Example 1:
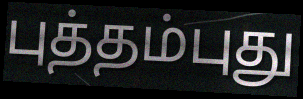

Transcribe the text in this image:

புத்தம்புது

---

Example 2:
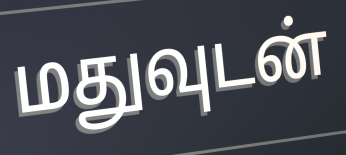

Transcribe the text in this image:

மதுவுடன்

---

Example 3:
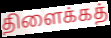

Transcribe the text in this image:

திளைக்கத்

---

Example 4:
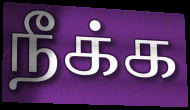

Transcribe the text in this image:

நீக்க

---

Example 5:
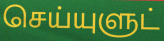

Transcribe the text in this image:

செய்யுளுட்